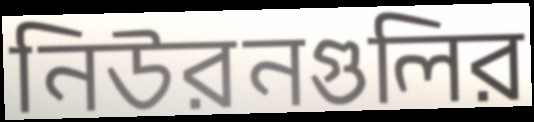
নিউরনগুলির